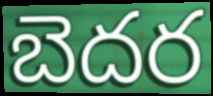
బెదర